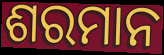
ଶରମାନ